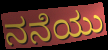
ನನೆಯು